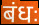
बंधः